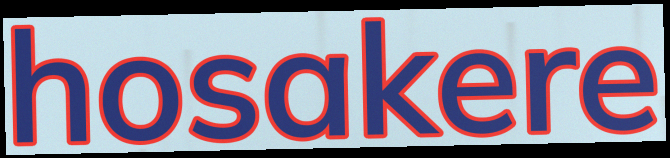
hosakere